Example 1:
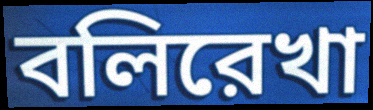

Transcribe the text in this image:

বলিরেখা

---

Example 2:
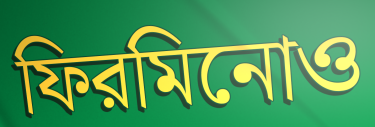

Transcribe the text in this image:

ফিরমিনোও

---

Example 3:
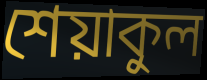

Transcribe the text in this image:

শেয়াকুল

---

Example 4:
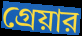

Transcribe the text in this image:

গ্রেয়ার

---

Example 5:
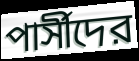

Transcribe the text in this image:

পার্সীদের